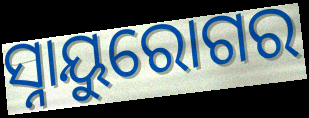
ସ୍ନାୟୁରୋଗର